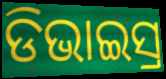
ଡିଭାଇସ୍ର